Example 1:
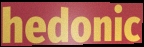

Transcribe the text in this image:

hedonic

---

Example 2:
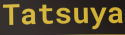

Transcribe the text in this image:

Tatsuya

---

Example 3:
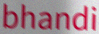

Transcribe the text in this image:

bhandi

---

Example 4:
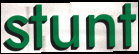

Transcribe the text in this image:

stunt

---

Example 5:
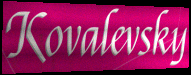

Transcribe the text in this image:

Kovalevsky